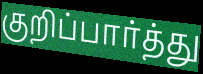
குறிப்பார்த்து